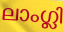
ലാംഗ്ലി